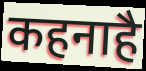
कहनाहै